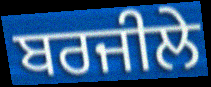
ਬਰਜੀਲੇ